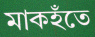
মাকহঁতে